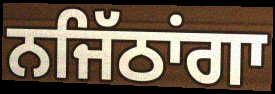
ਨਜਿੱਠਾਂਗਾ